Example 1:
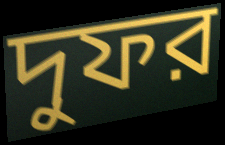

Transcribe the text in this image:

দুফর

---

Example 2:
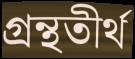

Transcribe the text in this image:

গ্রন্থতীর্থ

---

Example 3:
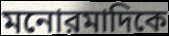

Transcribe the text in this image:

মনোরমাদিকে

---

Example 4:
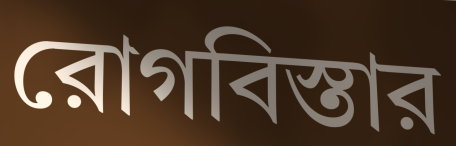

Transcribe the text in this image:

রোগবিস্তার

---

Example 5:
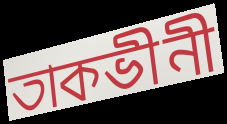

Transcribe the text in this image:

তাকভীনী